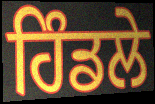
ਹਿੰਡਲੇ